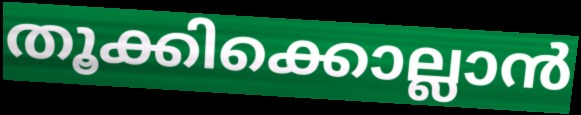
തൂക്കിക്കൊല്ലാൻ